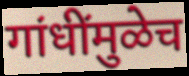
गांधींमुळेच